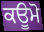
ਕਊਮੋ